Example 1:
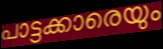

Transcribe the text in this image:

പാട്ടക്കാരെയും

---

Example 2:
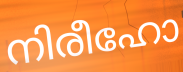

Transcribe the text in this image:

നിരീഹോ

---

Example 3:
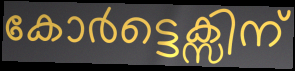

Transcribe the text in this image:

കോർട്ടെക്സിന്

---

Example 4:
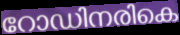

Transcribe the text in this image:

റോഡിനരികെ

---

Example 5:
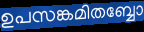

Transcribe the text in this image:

ഉപസങ്കമിതബ്ബോ